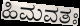
ಹಿಮವತಃ